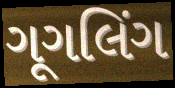
ગૂગલિંગ